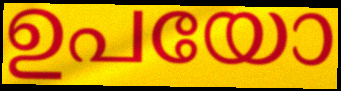
ഉപയോ